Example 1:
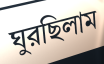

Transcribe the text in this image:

ঘুরছিলাম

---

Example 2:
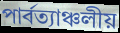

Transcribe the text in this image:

পার্বত্যাঞ্চলীয়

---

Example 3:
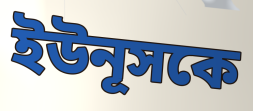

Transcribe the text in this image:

ইউনূসকে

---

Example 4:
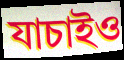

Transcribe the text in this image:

যাচাইও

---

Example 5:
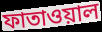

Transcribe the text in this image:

ফাতাওয়াল